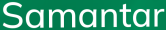
Samantar